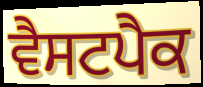
ਵੈਸਟਪੈਕ